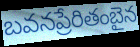
బవనప్రేరితంబైన